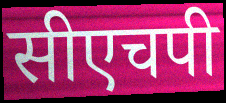
सीएचपी